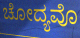
ಚೋದ್ಯವೊ